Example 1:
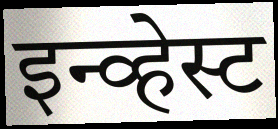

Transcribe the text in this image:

इन्व्हेस्ट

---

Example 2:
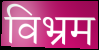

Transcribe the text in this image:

विभ्रम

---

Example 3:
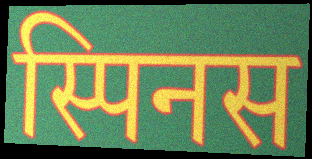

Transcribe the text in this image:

स्पिनस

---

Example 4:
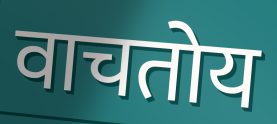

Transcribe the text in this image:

वाचतोय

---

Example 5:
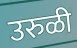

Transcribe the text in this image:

उरुळी